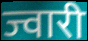
ज्वारी